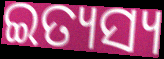
ଇତ୍ୟସ୍ୟ